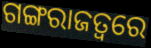
ଗଙ୍ଗରାଜତ୍ୱରେ